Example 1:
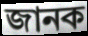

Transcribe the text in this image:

জানক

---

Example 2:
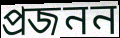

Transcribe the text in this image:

প্ৰজনন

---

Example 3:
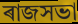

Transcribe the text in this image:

ৰাজসভা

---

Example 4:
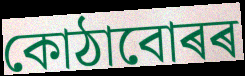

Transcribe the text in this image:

কোঠাবোৰৰ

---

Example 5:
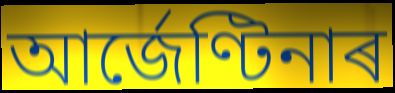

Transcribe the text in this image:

আৰ্জেণ্টিনাৰ